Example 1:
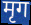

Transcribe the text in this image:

मृग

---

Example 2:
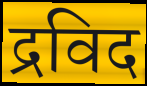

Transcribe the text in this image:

द्रविद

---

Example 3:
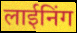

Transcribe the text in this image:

लाईनिंग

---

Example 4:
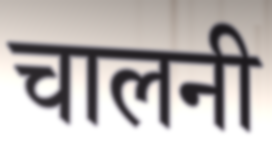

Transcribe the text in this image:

चालनी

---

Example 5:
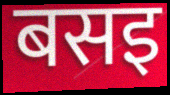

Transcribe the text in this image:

बसइ